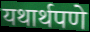
यथार्थपणे